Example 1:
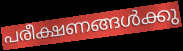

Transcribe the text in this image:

പരീക്ഷണങ്ങൾക്കു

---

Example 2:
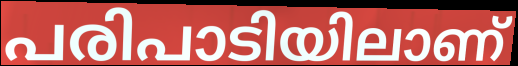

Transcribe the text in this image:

പരിപാടിയിലാണ്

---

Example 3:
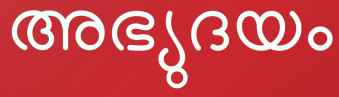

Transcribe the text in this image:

അഭ്യുദയം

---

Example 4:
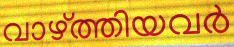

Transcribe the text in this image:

വാഴ്ത്തിയവർ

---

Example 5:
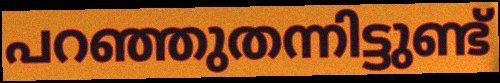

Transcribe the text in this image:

പറഞ്ഞുതന്നിട്ടുണ്ട്